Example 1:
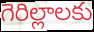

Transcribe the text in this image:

గెరిల్లాలకు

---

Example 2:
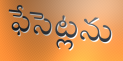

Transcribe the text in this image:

ఫేసెట్లను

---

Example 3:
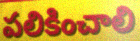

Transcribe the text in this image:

పలికించాలి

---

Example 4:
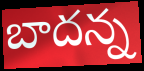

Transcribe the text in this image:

బాదన్న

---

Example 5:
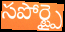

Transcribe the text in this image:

సపోర్ట్పై